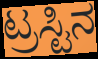
ಟ್ರಸ್ಟಿನ